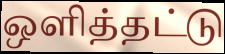
ஒளித்தட்டு